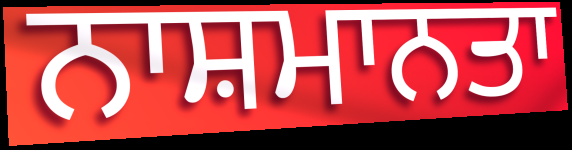
ਨਾਸ਼ਮਾਨਤਾ